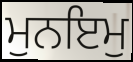
ਮੁਨਇਮੁ